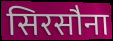
सिरसौना